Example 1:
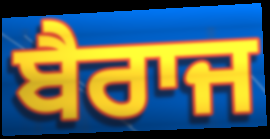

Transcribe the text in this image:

ਬੈਰਾਜ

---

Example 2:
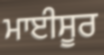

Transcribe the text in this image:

ਮਾਈਸੂਰ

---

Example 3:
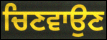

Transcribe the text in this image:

ਚਿਣਵਾਉਣ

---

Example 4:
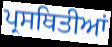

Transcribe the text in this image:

ਪ੍ਰਸਥਿਤੀਆਂ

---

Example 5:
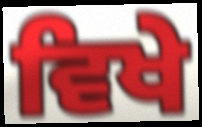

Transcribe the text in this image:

ਵਿਖੇ